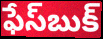
ఫేస్‌బుక్